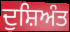
ਦੁਸ਼ਿਅੰਤ